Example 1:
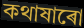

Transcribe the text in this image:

কথাষাৰো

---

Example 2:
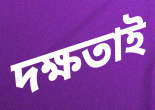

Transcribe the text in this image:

দক্ষতাই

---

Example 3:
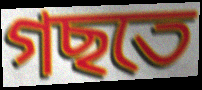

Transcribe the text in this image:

গছতে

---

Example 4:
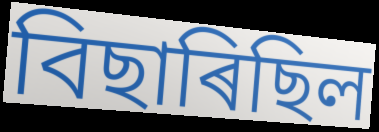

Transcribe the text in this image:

বিছাৰিছিল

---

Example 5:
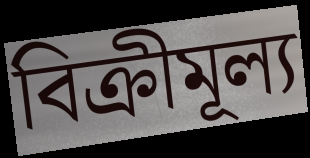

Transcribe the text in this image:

বিক্ৰীমূল্য